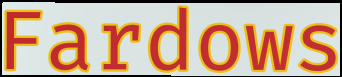
Fardows